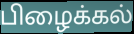
பிழைக்கல்